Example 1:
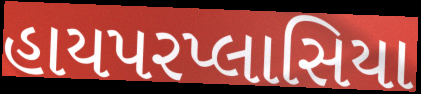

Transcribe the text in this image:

હાયપરપ્લાસિયા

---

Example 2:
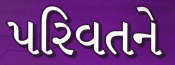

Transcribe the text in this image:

પરિવતને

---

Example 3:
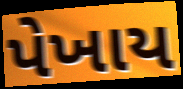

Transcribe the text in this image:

પેખાય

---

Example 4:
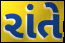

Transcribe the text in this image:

રાંતે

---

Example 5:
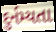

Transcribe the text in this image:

દુર્નમ્યતા